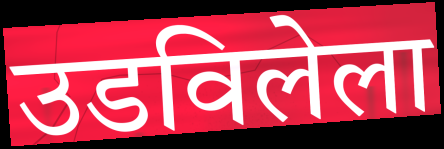
उडविलेला